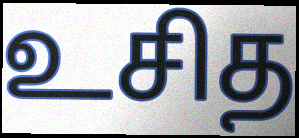
உசித